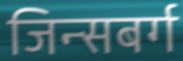
जिन्सबर्ग